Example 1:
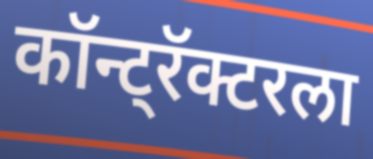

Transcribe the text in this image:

कॉन्ट्रॅक्टरला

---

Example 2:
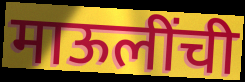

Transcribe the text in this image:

माऊलींची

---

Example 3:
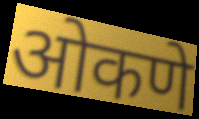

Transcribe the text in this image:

ओकणे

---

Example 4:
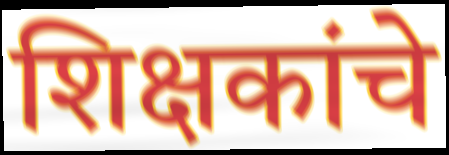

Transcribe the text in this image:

शिक्षकांचे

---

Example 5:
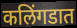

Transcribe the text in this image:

कलिंगडात